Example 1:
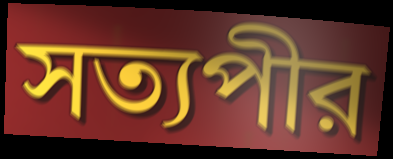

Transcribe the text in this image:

সত্যপীর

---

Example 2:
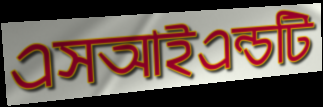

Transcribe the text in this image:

এসআইএন্ডটি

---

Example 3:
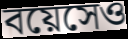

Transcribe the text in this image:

বয়েসেও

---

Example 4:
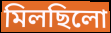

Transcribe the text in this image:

মিলছিলো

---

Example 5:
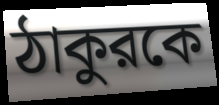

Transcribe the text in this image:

ঠাকুরকে